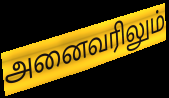
அனைவரிலும்